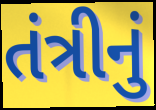
તંત્રીનું